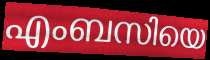
എംബസിയെ